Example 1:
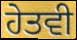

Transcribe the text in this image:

ਹੇਤਵੀ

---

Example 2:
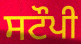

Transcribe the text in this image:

ਸਟੌਪੀ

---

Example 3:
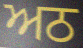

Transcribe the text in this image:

ਅਠ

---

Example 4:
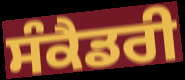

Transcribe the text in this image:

ਸੰਕੈਡਰੀ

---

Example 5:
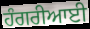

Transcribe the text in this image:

ਹੰਗਰੀਆਈ